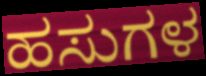
ಹಸುಗಳ